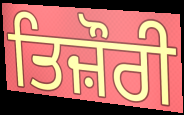
ਤਿਜ਼ੌਰੀ